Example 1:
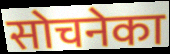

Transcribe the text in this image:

सोचनेका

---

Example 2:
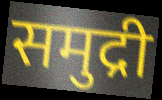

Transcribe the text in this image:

समुद्री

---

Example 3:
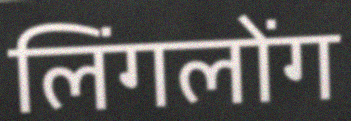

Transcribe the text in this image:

लिंगलोंग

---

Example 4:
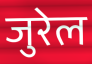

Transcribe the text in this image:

जुरेल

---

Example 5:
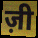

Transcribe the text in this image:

ज़ी